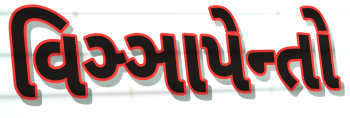
વિઞ્ઞાપેન્તો